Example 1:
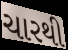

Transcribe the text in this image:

ચારથી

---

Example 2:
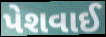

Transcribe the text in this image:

પેશવાઈ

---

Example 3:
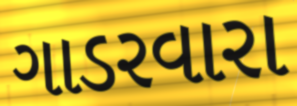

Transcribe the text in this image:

ગાડરવારા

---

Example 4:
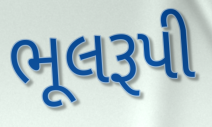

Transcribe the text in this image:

ભૂલરૂપી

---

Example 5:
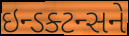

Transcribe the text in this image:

ઇન્ડક્ટન્સને